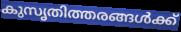
കുസൃതിത്തരങ്ങൾക്ക്